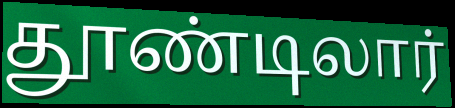
தூண்டிலார்